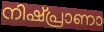
നിഷ്പ്രാണാ